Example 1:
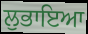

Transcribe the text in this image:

ਲੁਭਾਇਆ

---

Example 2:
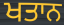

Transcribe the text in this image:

ਖਤਾਨ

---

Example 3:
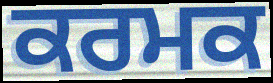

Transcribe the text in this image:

ਕਰਮਕ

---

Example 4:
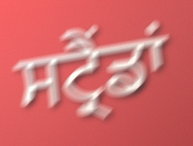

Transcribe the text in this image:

ਸਟ੍ਰੈਂਡਾਂ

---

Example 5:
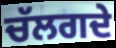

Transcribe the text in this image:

ਚੱਲਗਦੇ